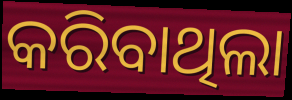
କରିବାଥିଲା